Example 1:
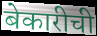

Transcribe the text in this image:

बेकारीची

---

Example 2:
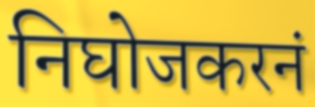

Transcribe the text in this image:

निघोजकरनं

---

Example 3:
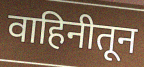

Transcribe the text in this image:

वाहिनीतून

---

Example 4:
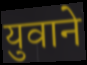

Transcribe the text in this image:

युवाने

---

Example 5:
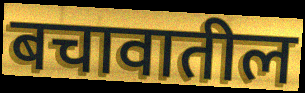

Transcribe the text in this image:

बचावातील